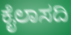
ಕೈಲಾಸದಿ